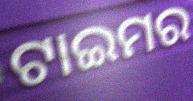
ଟାଇମର